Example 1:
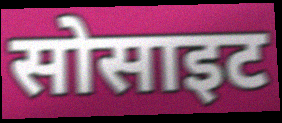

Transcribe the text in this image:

सोसाइट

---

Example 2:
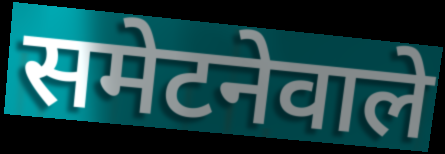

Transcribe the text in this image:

समेटनेवाले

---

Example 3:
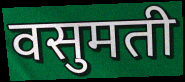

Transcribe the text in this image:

वसुमती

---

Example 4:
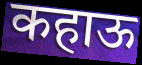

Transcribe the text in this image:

कहाऊ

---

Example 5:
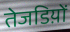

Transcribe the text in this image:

तेजडिय़ों